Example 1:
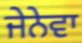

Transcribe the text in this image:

ਜੇਨੇਵਾ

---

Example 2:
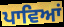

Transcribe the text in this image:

ਪਾਵਿਆਂ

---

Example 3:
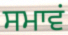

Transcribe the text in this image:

ਸਮਾਵਂ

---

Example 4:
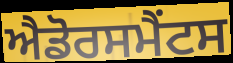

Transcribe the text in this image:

ਐਡੋਰਸਮੈਂਟਸ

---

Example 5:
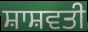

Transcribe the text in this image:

ਸ਼ਾਸ਼ਵਤੀ